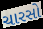
ચારસો